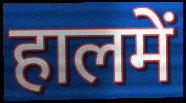
हालमें